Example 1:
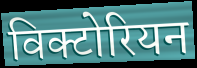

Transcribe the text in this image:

विक्टोरियन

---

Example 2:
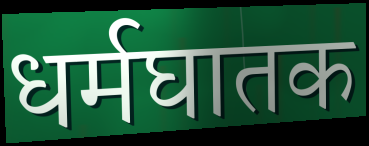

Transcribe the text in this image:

धर्मघातक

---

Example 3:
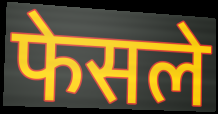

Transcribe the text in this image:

फेसले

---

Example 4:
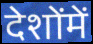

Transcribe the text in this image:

देशोंमें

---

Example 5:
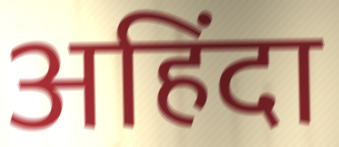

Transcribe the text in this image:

अहिंदा